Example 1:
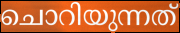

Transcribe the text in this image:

ചൊറിയുന്നത്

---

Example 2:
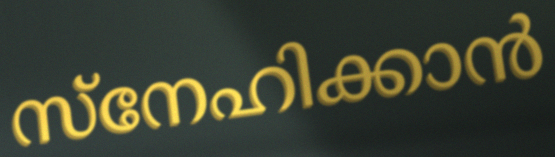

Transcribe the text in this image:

സ്നേഹിക്കാൻ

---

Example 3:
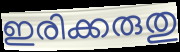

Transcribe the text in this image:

ഇരിക്കരുതു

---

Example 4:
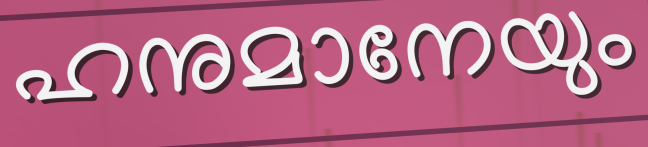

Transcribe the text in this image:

ഹനുമാനേയും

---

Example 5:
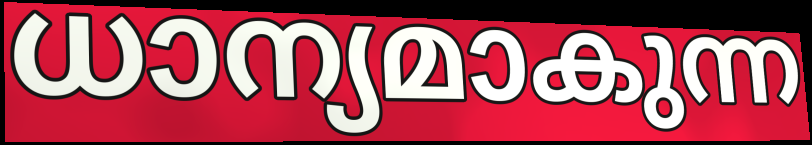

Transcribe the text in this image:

ധാന്യമാകുന്ന